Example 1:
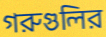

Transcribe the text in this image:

গরুগুলির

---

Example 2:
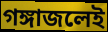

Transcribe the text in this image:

গঙ্গাজলেই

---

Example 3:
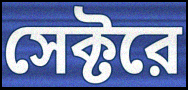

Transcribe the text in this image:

সেক্টরে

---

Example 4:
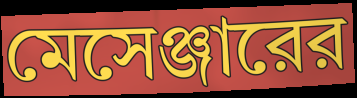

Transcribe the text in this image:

মেসেঞ্জারের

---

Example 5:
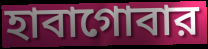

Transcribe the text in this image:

হাবাগোবার